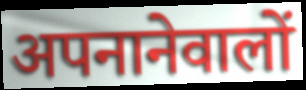
अपनानेवालों